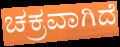
ಚಕ್ರವಾಗಿದೆ